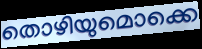
തൊഴിയുമൊക്കെ